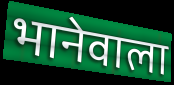
भानेवाला